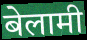
बेलामी